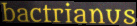
bactrianus